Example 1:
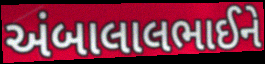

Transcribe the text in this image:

અંબાલાલભાઈને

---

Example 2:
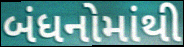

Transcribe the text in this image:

બંધનોમાંથી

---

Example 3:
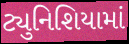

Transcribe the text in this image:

ટ્યુનિશિયામાં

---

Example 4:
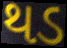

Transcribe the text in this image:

થડ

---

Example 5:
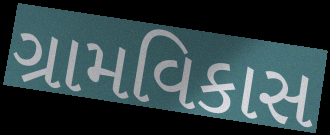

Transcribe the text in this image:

ગ્રામવિકાસ